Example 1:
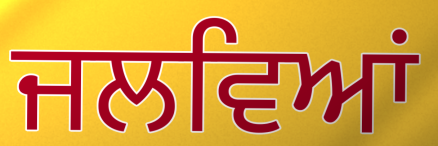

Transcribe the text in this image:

ਜਲਵਿਆਂ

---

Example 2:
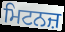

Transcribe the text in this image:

ਮਿਟਨਜ਼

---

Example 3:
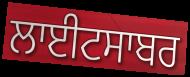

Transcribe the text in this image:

ਲਾਈਟਸਾਬਰ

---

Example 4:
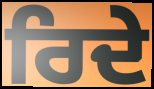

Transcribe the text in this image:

ਰਿਦੇ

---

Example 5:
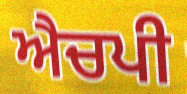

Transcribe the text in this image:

ਐਚਪੀ